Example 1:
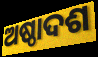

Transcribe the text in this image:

ଅଷ୍ଠାଦଶ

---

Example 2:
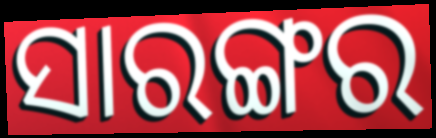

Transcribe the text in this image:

ସାରଙ୍ଗର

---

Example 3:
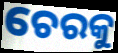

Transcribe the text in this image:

ଚେରକୁ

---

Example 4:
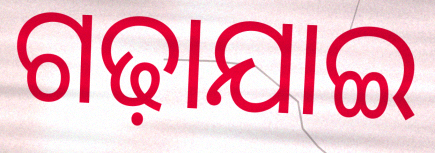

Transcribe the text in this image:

ଗଢ଼ାଯାଇ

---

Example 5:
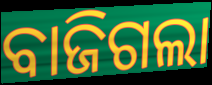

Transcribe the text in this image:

ବାଜିଗଲା